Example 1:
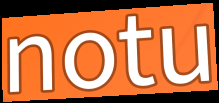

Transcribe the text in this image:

notu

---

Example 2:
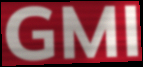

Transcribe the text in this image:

GMI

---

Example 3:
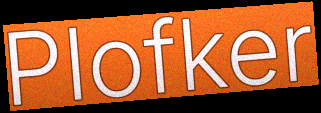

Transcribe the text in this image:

Plofker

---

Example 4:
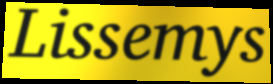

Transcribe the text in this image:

Lissemys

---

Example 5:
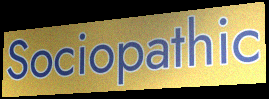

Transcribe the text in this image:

Sociopathic